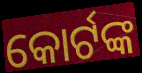
କୋର୍ଟଙ୍କ